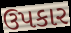
ઉપકાર